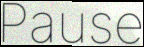
Pause